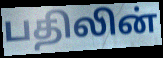
பதிலின்